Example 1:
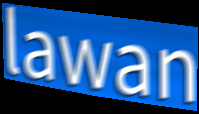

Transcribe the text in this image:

lawan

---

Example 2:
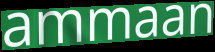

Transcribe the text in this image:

ammaan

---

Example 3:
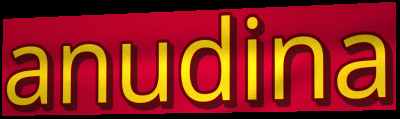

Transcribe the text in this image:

anudina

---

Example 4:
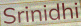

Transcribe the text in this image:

Srinidhi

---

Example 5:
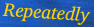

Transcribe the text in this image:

Repeatedly